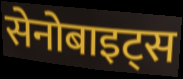
सेनोबाइट्स